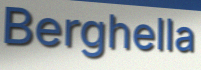
Berghella